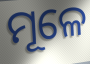
ମୂଳେ